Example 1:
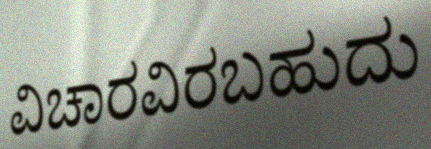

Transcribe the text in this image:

ವಿಚಾರವಿರಬಹುದು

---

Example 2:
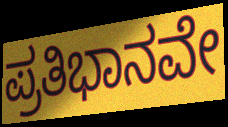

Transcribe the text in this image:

ಪ್ರತಿಭಾನವೇ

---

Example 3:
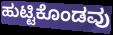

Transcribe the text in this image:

ಹುಟ್ಟಿಕೊಂಡವು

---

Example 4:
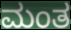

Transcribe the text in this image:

ಮಂತ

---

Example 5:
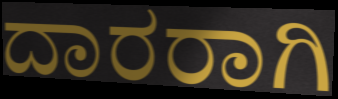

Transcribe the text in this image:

ದಾರರಾಗಿ